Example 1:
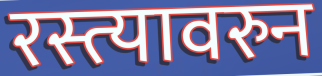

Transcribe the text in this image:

रस्त्यावरुन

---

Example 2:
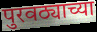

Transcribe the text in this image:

पुरवठ्याच्या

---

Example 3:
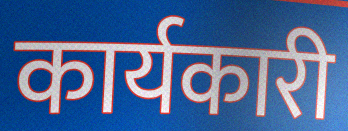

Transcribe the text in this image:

कार्यकारी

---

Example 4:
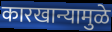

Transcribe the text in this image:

कारखान्यामुळे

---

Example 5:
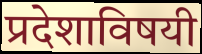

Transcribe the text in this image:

प्रदेशाविषयी